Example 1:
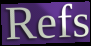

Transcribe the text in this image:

Refs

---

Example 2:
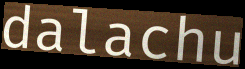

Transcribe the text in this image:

dalachu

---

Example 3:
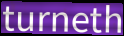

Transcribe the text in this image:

turneth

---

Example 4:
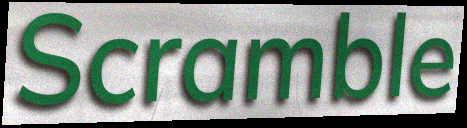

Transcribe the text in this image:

Scramble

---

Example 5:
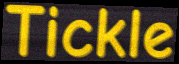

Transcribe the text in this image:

Tickle